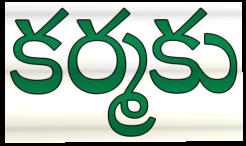
కర్మకు